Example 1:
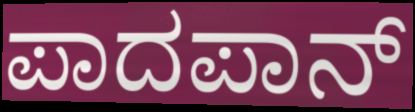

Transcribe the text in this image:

ಪಾದಪಾನ್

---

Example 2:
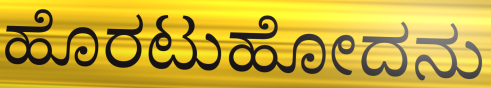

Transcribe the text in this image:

ಹೊರಟುಹೋದನು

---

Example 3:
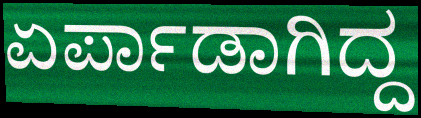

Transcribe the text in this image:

ಏರ್ಪಾಡಾಗಿದ್ದ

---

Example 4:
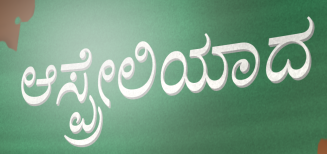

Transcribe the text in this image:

ಆಸ್ಪ್ರೇಲಿಯಾದ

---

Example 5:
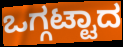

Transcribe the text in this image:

ಒಗ್ಗಟ್ಟಾದ